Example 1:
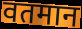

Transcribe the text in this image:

वतमान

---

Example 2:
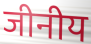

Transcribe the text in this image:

जीनीय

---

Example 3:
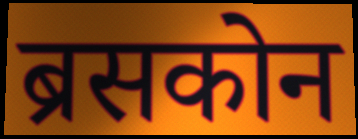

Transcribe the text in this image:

ब्रसकोन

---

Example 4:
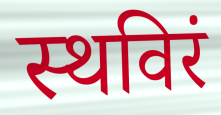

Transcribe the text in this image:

स्थविरं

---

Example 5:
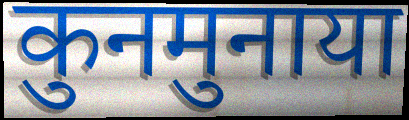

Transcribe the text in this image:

कुनमुनाया